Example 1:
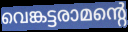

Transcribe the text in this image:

വെങ്കട്ടരാമന്റെ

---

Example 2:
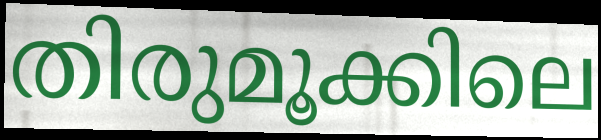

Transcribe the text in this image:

തിരുമൂക്കിലെ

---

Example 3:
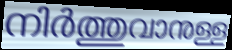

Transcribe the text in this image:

നിർത്തുവാനുള്ള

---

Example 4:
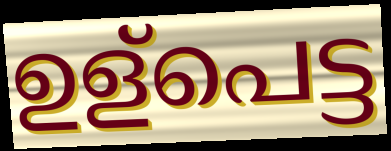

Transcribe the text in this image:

ഉള്പെട്ട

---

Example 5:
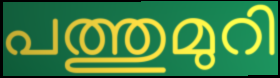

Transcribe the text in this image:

പത്തുമുറി